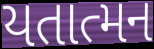
યતાત્મન